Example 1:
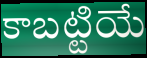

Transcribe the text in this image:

కాబట్టియే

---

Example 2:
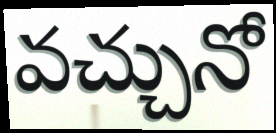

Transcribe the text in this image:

వచ్చునో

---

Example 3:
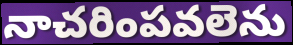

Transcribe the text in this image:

నాచరింపవలెను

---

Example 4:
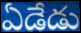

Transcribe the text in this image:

ఏడేడు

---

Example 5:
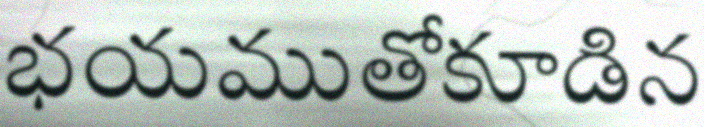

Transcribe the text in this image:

భయముతోకూడిన